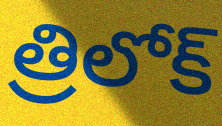
త్రిలోక్